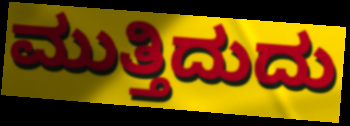
ಮುತ್ತಿದುದು